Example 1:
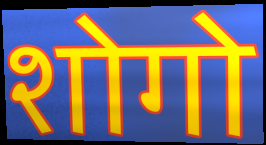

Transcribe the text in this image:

शोगो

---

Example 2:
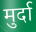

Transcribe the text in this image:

मुर्दा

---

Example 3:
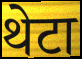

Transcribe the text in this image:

थेटा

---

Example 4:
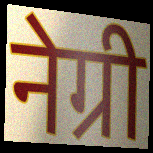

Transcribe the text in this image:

नेग्री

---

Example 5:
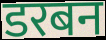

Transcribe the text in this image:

डरबन